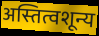
अस्तित्वशून्य